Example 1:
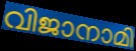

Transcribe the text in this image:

വിജാനാമി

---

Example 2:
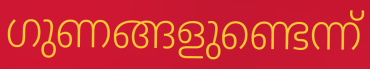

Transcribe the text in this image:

ഗുണങ്ങളുണ്ടെന്ന്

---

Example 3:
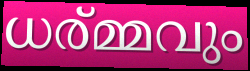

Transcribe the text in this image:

ധര്മ്മവും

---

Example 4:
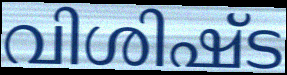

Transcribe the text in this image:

വിശിഷ്ട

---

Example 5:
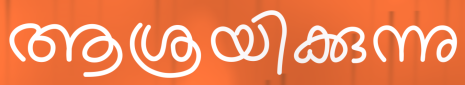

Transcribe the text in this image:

ആശ്രയിക്കുന്നു